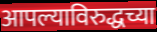
आपल्याविरुद्धच्या